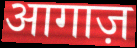
आगाज़